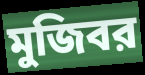
মুজিবর